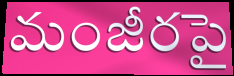
మంజీరపై